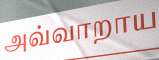
அவ்வாறாய